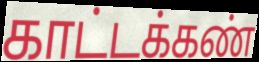
காட்டக்கண்